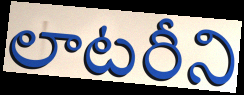
లాటరీని